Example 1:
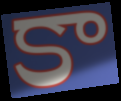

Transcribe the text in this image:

కా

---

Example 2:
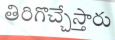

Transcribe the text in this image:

తిరిగొచ్చేస్తారు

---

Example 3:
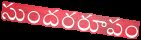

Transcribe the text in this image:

సుందరరూపం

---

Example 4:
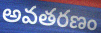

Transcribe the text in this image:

అవతరణం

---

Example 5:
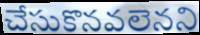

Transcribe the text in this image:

చేసుకొనవలెనని